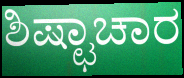
ಶಿಷ್ಟಾಚಾರ